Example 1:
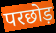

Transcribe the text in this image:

परछोड़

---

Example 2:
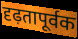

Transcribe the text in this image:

दृढ़तापूर्वक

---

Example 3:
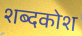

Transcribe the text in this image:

शब्दकोश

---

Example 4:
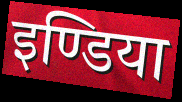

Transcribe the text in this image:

इण्डिया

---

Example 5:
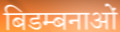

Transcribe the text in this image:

बिडम्बनाओं